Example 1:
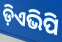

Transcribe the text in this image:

ଡ଼ିଏଭିପି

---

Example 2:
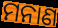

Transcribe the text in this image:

ମନାଣ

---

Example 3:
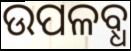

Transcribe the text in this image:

ଉପଳବ୍ଧ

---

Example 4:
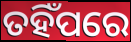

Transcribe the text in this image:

ତହିଁପରେ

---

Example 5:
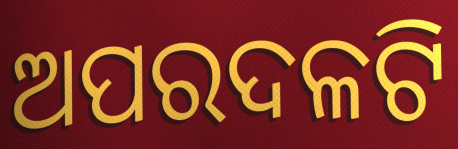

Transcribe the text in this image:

ଅପରଦଳଟି